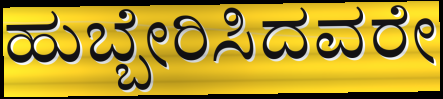
ಹುಬ್ಬೇರಿಸಿದವರೇ